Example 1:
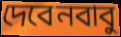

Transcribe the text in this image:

দেবেনবাবু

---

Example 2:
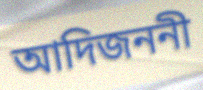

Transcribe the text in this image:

আদিজননী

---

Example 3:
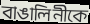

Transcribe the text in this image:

বাঙালিনীকে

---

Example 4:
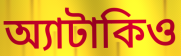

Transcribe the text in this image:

অ্যাটাকিও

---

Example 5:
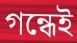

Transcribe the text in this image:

গন্ধেই